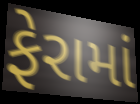
ફેરામાં